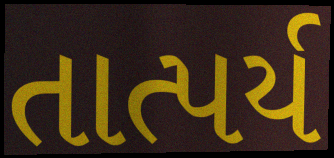
તાત્પર્ય